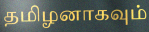
தமிழனாகவும்